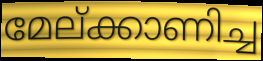
മേല്ക്കാണിച്ച